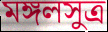
মঙ্গলসুত্র